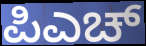
ಪಿಎಚ್